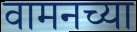
वामनच्या